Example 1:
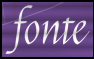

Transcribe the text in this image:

fonte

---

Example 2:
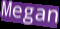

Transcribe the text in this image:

Megan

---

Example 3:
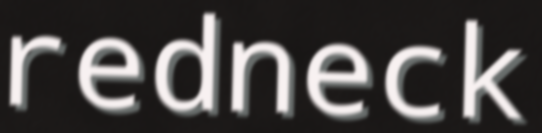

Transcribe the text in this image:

redneck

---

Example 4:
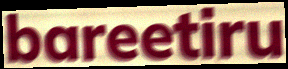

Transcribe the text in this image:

bareetiru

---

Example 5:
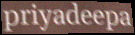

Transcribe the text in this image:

priyadeepa